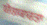
ਯੋਗਕਾਰਤਾ